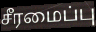
சீரமைப்பு